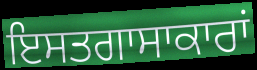
ਇਸਤਗਾਸਾਕਾਰਾਂ